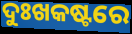
ଦୁଃଖକଷ୍ଟରେ